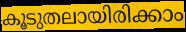
കൂടുതലായിരിക്കാം